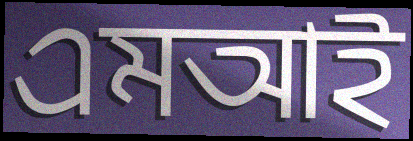
এমআই